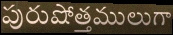
పురుషోత్తములుగా